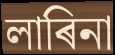
লাৰিনা